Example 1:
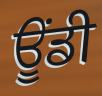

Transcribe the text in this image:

ਊਂਡੀ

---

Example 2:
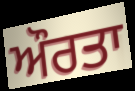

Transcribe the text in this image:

ਔਰਤਾ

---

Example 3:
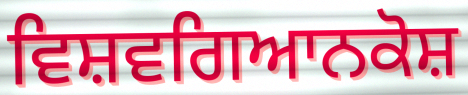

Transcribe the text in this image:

ਵਿਸ਼ਵਗਿਆਨਕੋਸ਼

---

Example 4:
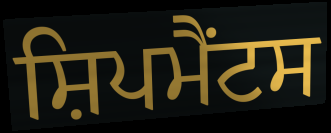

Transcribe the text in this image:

ਸ਼ਿਪਮੈਂਟਸ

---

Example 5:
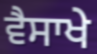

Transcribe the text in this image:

ਵੈਸਾਖੇ